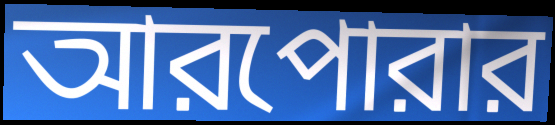
আরপোরার